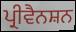
ਪ੍ਰੀਵੈਨਸ਼ਨ